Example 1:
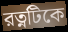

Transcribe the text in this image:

রত্নটিকে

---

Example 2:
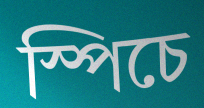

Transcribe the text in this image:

স্পিচে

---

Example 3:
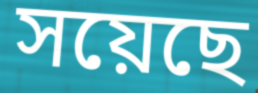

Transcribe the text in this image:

সয়েছে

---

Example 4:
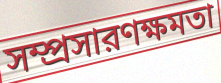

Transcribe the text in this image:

সম্প্রসারণক্ষমতা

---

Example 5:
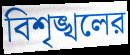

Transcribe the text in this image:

বিশৃঙ্খলের